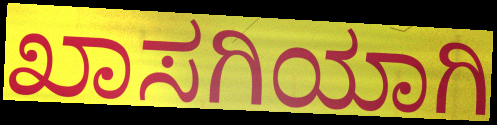
ಖಾಸಗಿಯಾಗಿ